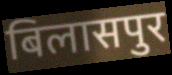
बिलासपुर